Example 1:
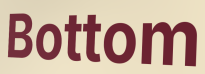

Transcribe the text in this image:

Bottom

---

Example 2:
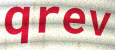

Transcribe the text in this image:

qrev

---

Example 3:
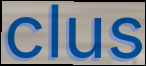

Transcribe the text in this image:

clus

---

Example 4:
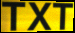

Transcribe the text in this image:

TXT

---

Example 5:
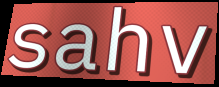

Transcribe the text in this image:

sahv